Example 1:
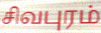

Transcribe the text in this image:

சிவபுரம்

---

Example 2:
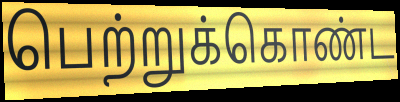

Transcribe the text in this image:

பெற்றுக்கொண்ட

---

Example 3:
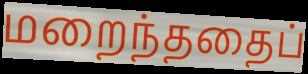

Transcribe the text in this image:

மறைந்ததைப்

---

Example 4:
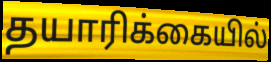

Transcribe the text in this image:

தயாரிக்கையில்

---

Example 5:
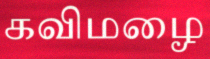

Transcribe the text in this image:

கவிமழை